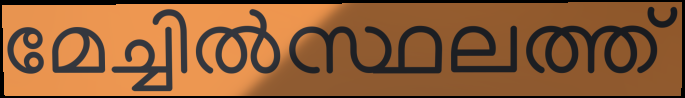
മേച്ചിൽസ്ഥലത്ത്